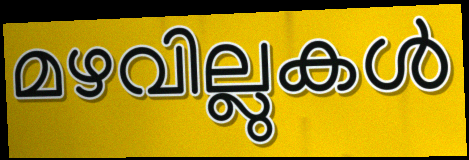
മഴവില്ലുകൾ